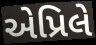
એપ્રિલે